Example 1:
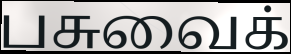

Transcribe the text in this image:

பசுவைக்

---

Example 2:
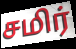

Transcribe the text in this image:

சமிர்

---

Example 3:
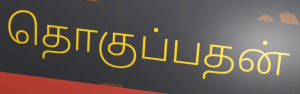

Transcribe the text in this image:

தொகுப்பதன்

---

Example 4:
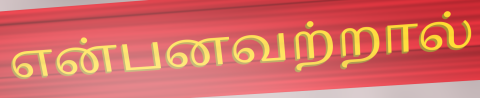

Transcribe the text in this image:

என்பனவற்றால்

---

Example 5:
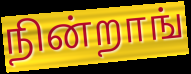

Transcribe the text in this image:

நின்றாங்